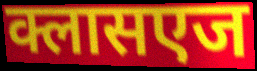
क्लासएज